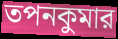
তপনকুমার